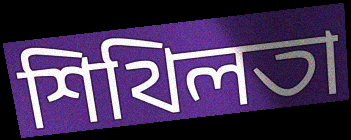
শিথিলতা